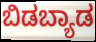
ಬಿಡಬ್ಯಾಡ